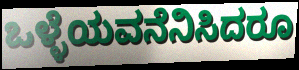
ಒಳ್ಳೆಯವನೆನಿಸಿದರೂ